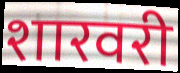
शारवरी